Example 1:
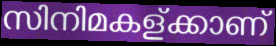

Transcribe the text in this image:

സിനിമകള്ക്കാണ്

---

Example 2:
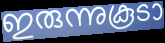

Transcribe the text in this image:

ഇരുന്നുകൂടാ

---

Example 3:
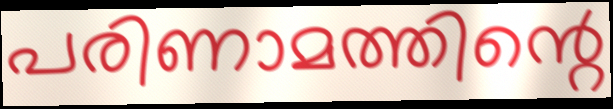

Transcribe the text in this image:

പരിണാമത്തിന്റെ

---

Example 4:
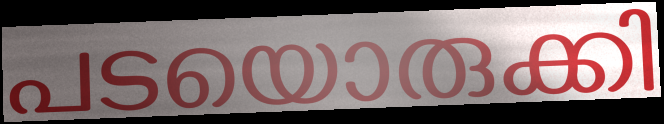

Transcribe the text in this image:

പടയൊരുക്കി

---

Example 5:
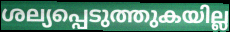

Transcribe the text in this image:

ശല്യപ്പെടുത്തുകയില്ല